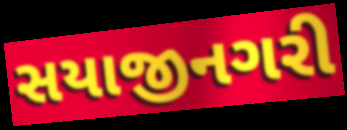
સયાજીનગરી